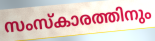
സംസ്കാരത്തിനും